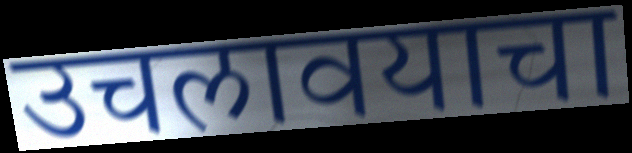
उचलावयाचा